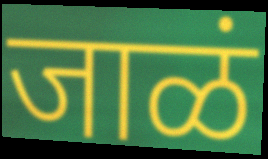
जाळं